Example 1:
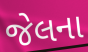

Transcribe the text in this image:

જેલના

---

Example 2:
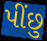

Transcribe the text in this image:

પીંછુ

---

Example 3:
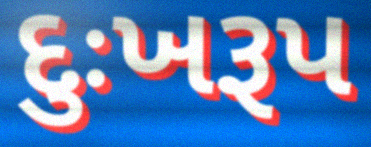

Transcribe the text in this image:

દુઃખરૂપ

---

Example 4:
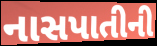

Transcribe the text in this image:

નાસપાતીની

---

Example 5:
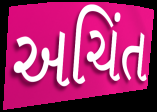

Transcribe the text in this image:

અચિંત